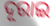
ଦୂରାଇ